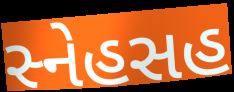
સ્નેહસહ